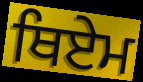
ਥਿਏਮ